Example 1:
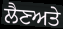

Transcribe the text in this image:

ਲੈਣਅਤੇ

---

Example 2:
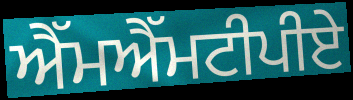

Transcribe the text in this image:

ਐੱਮਐੱਮਟੀਪੀਏ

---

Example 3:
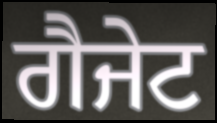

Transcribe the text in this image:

ਗੈਜੇਟ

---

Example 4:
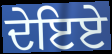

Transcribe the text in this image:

ਦੇਇਏ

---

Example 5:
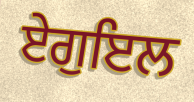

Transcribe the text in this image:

ਏਗੁਇਲ